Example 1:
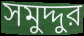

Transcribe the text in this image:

সমুদ্দুর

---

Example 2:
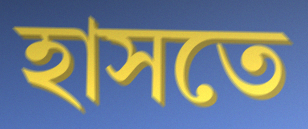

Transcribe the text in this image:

হাসতে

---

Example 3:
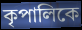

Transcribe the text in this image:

কৃপালিকে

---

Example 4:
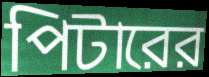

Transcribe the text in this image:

পিটারের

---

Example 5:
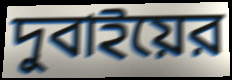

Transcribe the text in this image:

দুবাইয়ের